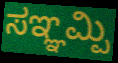
ಸಞ್ಞಮ್ಪಿ